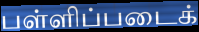
பள்ளிப்படைக்